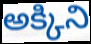
అక్కిని